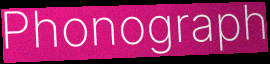
Phonograph